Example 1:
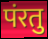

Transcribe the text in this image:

पंरतु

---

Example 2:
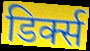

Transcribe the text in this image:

डिर्क्स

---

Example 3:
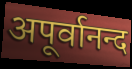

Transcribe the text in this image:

अपूर्वानन्द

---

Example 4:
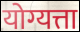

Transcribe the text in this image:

योग्यत्ता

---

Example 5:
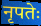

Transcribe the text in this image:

नृपतेः